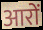
आरों